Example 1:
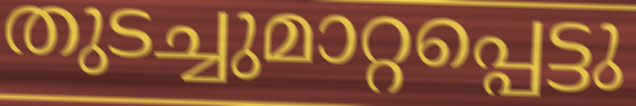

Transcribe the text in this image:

തുടച്ചുമാറ്റപ്പെട്ടു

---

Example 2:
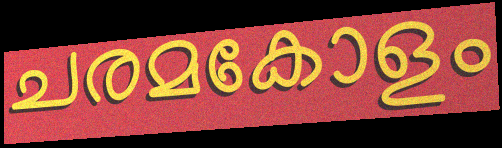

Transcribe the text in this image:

ചരമകോളം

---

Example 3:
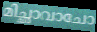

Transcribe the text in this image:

മിച്ഛാവാചോ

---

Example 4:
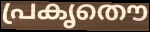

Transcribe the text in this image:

പ്രകൃതൌ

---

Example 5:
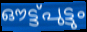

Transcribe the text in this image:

ഔട്ട്പുട്ടും